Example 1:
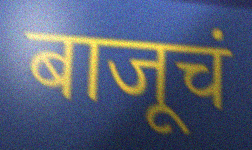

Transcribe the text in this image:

बाजूचं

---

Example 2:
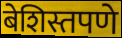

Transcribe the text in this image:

बेशिस्तपणे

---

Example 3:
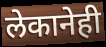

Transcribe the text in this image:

लेकानेही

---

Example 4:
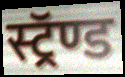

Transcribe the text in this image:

स्ट्रॅण्ड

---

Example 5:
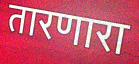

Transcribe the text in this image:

तारणारा